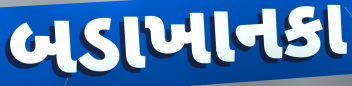
બડાખાનકા